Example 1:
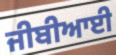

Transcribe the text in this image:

ਜੀਬੀਆਈ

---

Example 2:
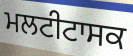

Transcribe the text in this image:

ਮਲਟੀਟਾਸਕ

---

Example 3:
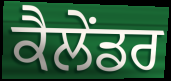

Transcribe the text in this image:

ਕੈਲੇਂਡਰ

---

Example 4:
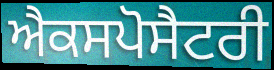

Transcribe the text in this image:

ਐਕਸਪੋਸੈਟਰੀ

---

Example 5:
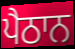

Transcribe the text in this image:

ਪੈਠਾਨ